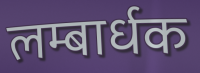
लम्बार्धक